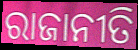
ରାଜାନୀତି